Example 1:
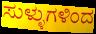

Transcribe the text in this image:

ಸುಳ್ಳುಗಳಿಂದ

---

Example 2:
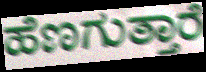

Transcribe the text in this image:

ಹೆಣಗುತ್ತಾರೆ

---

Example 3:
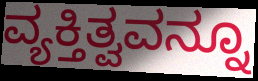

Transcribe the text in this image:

ವ್ಯಕ್ತಿತ್ವವನ್ನೂ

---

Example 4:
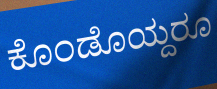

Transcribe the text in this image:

ಕೊಂಡೊಯ್ದರೂ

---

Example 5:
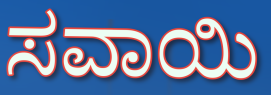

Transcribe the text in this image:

ಸವಾಯಿ